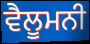
ਵੈਲੂਮਨੀ